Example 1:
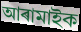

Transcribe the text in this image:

আৰামাইক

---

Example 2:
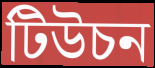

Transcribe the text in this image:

টিউচন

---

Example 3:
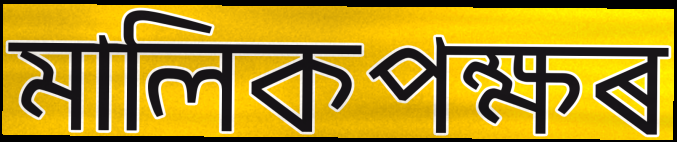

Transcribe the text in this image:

মালিকপক্ষৰ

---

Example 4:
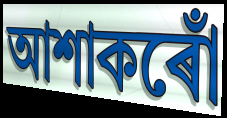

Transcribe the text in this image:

আশাকৰোঁ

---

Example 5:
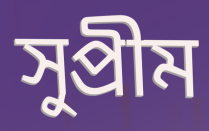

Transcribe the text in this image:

সুপ্ৰীম